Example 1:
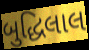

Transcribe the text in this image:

બુદ્ધિલાલ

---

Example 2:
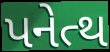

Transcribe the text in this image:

પનેત્થ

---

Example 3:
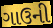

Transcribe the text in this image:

ગાઉની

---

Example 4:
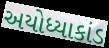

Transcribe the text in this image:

અયોધ્યાકાંડ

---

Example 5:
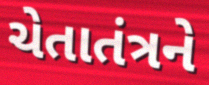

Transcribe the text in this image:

ચેતાતંત્રને